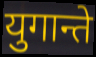
युगान्ते